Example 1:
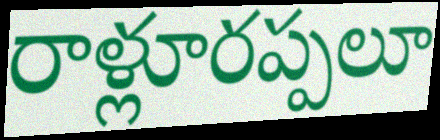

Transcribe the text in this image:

రాళ్లూరప్పలూ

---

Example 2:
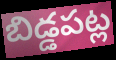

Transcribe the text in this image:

బిడ్డపట్ల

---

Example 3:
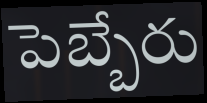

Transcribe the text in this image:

పెబ్బేరు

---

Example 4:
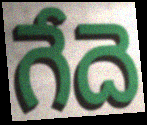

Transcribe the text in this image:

గేదె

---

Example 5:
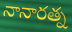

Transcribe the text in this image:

నానారత్న